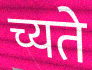
च्यते